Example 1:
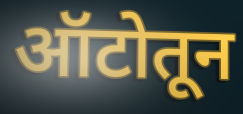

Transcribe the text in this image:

ऑटोतून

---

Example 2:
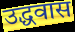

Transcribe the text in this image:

उद्धवास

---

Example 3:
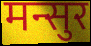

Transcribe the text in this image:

मन्सुर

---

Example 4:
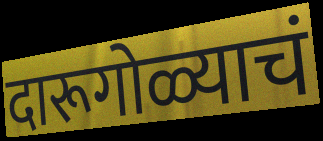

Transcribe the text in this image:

दारूगोळ्याचं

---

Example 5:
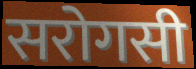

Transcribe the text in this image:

सरोगसी